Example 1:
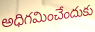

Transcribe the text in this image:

అధిగమించేందుకు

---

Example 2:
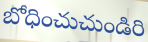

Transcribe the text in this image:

బోధించుచుండిరి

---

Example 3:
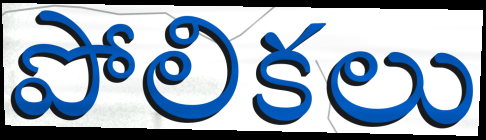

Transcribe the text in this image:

పోలికలు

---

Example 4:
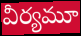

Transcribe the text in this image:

వీర్యమూ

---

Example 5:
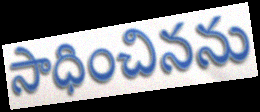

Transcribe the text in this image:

సాధించినను